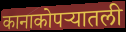
कानाकोपऱ्यातली